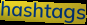
hashtags